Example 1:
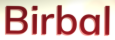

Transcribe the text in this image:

Birbal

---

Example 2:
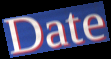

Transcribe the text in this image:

Date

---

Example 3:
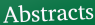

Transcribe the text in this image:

Abstracts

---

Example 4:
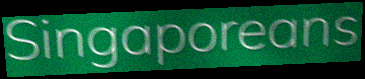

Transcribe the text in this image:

Singaporeans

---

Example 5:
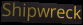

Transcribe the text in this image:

Shipwreck